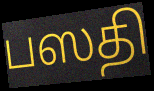
பஸதி